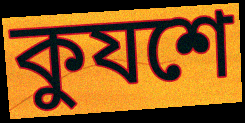
কুযশে